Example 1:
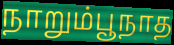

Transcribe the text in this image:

நாறும்பூநாத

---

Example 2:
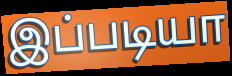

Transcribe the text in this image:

இப்படியா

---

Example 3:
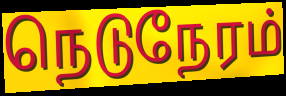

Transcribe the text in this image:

நெடுநேரம்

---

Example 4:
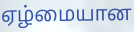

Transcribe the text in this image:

ஏழ்மையான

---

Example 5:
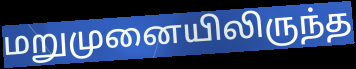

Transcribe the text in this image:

மறுமுனையிலிருந்த